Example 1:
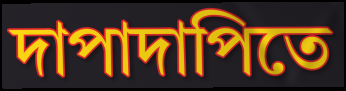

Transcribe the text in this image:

দাপাদাপিতে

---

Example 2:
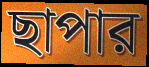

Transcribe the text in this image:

ছাপার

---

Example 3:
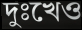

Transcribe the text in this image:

দুঃখেও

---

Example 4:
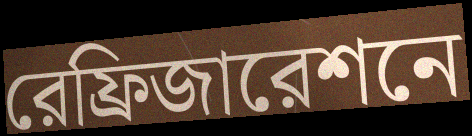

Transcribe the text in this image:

রেফ্রিজারেশনে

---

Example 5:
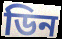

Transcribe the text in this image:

ডিন